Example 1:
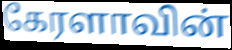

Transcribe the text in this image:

கேரளாவின்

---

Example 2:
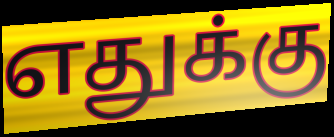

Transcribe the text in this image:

எதுக்கு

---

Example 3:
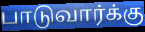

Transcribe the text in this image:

பாடுவார்க்கு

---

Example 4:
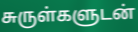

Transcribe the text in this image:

சுருள்களுடன்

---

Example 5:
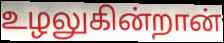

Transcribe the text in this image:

உழலுகின்றான்